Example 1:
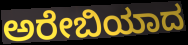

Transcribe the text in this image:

ಅರೇಬಿಯಾದ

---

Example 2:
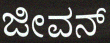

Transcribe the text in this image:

ಜೀವನ್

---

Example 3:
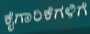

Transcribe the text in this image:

ಕೈಗಾರಿಕೆಗಳಿಗೆ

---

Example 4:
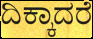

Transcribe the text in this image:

ದಿಕ್ಕಾದರೆ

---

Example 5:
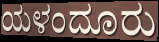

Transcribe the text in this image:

ಯಳಂದೂರು